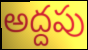
అద్దపు